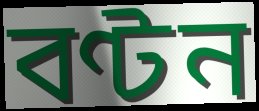
বণ্টন